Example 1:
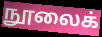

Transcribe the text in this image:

நூலைக்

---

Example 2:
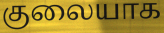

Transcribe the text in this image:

குலையாக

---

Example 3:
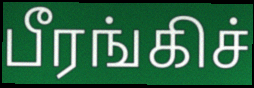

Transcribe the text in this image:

பீரங்கிச்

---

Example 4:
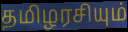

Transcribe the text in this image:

தமிழரசியும்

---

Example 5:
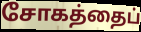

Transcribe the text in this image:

சோகத்தைப்